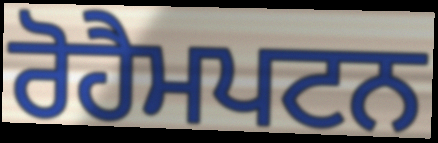
ਰੋਹੈਮਪਟਨ